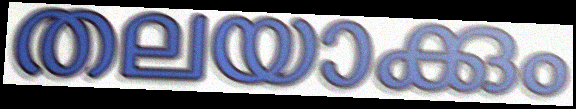
തലയാക്കും